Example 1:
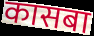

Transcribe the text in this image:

कासबा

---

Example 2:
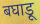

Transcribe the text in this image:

बघाडू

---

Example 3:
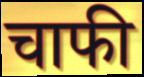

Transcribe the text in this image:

चाफी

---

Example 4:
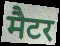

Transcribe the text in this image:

मैटर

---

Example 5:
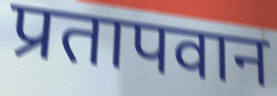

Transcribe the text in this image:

प्रतापवान